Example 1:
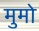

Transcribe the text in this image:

मुमो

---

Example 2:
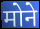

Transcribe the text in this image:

मोने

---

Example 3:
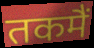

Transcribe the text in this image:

तकमैं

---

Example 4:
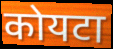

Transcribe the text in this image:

कोयटा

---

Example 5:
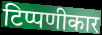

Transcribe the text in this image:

टिप्पणीकार